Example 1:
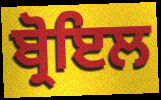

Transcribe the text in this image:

ਬ੍ਰੋਇਲ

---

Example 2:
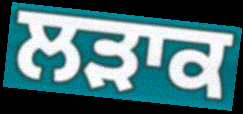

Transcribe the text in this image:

ਲੜਾਕ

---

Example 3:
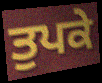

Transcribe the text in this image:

ਤੁਪਕੇ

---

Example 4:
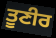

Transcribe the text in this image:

ਤੂਣੀਰ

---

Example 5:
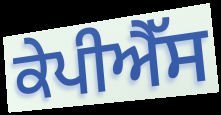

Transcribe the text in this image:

ਕੇਪੀਐੱਸ